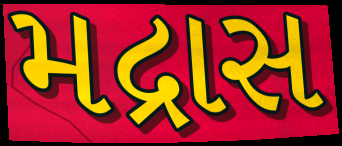
મદ્રાસ